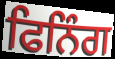
ਫਿਨਿੰਗ